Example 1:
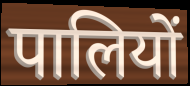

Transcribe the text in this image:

पालियों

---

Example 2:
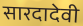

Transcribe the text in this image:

सारदादेवी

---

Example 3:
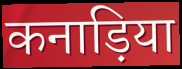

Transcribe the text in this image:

कनाड़िया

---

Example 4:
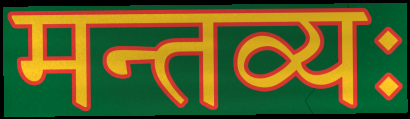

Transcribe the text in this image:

मन्तव्यः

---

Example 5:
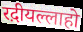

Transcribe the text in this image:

रद़ीयल्लाहो